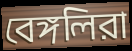
বেঙ্গলিরা